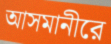
আসমানীরে